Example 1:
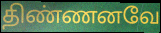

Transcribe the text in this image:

திண்ணனவே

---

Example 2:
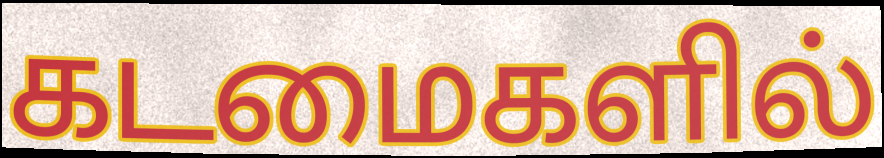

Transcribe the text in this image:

கடமைகளில்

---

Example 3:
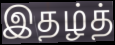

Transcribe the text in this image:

இதழ்த்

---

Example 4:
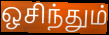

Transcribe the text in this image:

ஒசிந்தும்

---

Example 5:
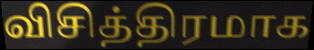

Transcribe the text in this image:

விசித்திரமாக